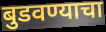
बुडवण्याचा